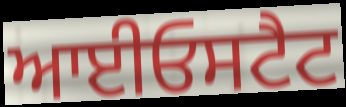
ਆਈਓਸਟੈਟ